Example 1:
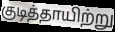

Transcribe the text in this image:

குடித்தாயிற்று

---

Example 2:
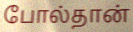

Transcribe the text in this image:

போல்தான்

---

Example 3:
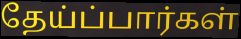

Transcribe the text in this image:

தேய்ப்பார்கள்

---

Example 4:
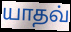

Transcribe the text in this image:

யாதவ்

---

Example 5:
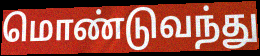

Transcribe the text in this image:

மொண்டுவந்து